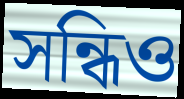
সন্ধিও